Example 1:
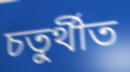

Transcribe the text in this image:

চতুৰ্থীত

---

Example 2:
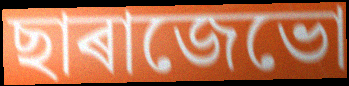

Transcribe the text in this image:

ছাৰাজেভো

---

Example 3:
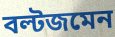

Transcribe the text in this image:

বল্টজমেন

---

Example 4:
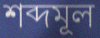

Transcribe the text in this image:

শব্দমূল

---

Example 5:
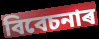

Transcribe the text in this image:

বিবেচনাৰ